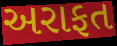
અરાફત